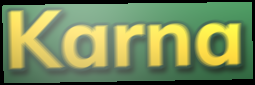
Karna